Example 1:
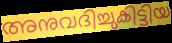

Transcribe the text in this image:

അനുവദിച്ചുകിട്ടിയ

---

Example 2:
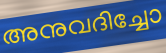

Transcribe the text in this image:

അനുവദിച്ചോ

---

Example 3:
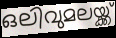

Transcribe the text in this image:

ഒലിവുമലയ്ക്ക്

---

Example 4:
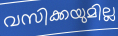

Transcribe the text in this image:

വസിക്കയുമില്ല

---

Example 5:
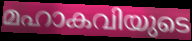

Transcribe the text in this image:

മഹാകവിയുടെ